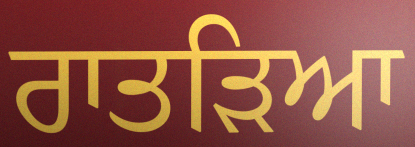
ਰਾਤੜਿਆ